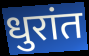
धुरांत